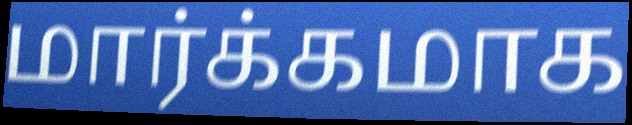
மார்க்கமாக